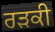
ਰੜਕੀ